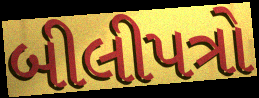
બીલીપત્રો